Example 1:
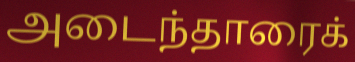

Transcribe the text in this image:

அடைந்தாரைக்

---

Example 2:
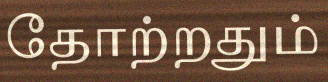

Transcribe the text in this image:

தோற்றதும்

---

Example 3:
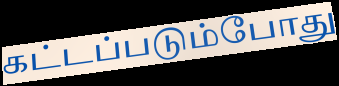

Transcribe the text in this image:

கட்டப்படும்போது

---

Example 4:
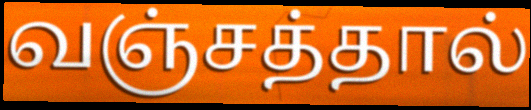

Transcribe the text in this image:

வஞ்சத்தால்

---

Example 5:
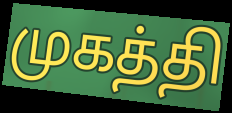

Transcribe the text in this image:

முகத்தி